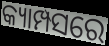
କ୍ୟାମ୍ପସରେ